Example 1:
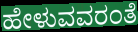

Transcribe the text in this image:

ಹೇಳುವವರಂತೆ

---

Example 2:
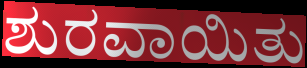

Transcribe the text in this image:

ಶುರವಾಯಿತು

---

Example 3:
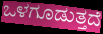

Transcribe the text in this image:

ಒಳಗೂಡುತ್ತದೆ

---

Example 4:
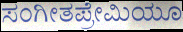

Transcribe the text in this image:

ಸಂಗೀತಪ್ರೇಮಿಯೂ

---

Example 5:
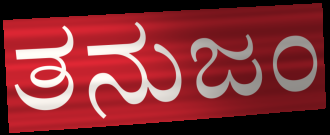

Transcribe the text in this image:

ತನುಜಂ